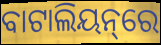
ବାଟାଲିୟନ୍‌ରେ